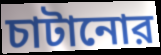
চাটানোর